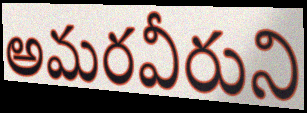
అమరవీరుని